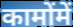
कामोंमें